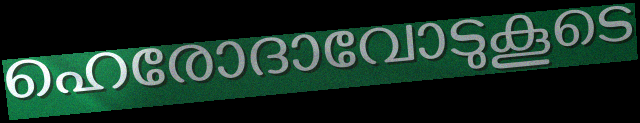
ഹെരോദാവോടുകൂടെ